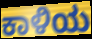
ಕಾಳಿಯ